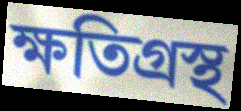
ক্ষতিগ্ৰস্থ